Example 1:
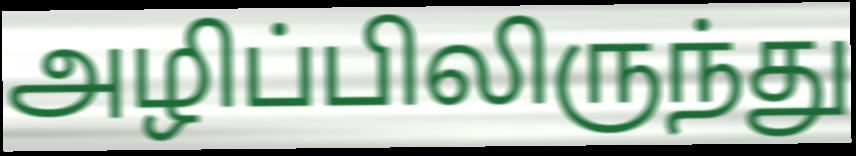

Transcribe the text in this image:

அழிப்பிலிருந்து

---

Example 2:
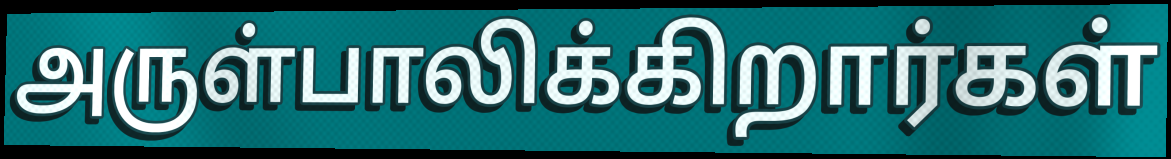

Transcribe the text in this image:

அருள்பாலிக்கிறார்கள்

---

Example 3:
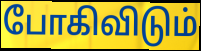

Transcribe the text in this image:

போகிவிடும்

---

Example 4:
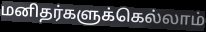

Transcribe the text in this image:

மனிதர்களுக்கெல்லாம்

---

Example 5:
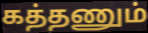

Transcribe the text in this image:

கத்தணும்